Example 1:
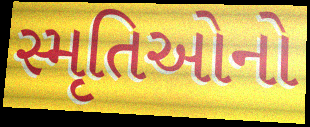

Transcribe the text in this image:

સ્મૃતિઓનો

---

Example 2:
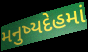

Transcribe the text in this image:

મનુષ્યદેહમાં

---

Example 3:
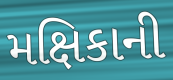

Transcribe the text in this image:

મક્ષિકાની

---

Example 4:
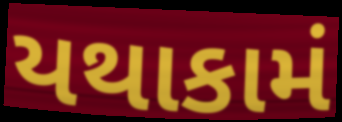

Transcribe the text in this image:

યથાકામં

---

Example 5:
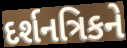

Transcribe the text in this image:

દર્શનત્રિકને